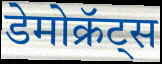
डेमोक्रॅट्स